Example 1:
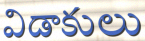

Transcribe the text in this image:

విడాకులు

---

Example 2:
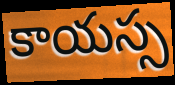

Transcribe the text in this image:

కాయస్స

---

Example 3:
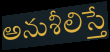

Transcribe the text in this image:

అనుశీలిస్తే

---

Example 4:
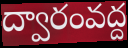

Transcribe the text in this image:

ద్వారంవద్ద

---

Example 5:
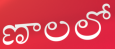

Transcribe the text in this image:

ణాలలో